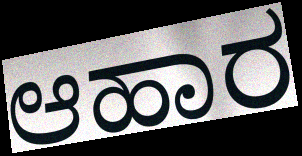
ಆಹಾರ